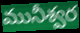
మునీశ్వర